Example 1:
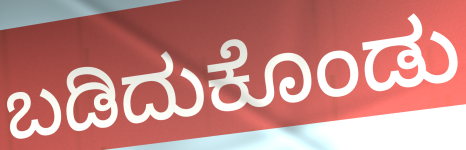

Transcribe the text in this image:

ಬಡಿದುಕೊಂಡು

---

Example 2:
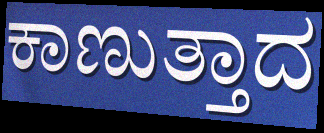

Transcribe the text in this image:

ಕಾಣುತ್ತಾದ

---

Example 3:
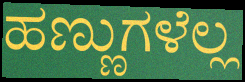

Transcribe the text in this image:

ಹಣ್ಣುಗಳೆಲ್ಲ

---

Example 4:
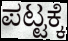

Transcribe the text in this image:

ಪಟ್ಟಕ್ಕೆ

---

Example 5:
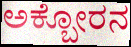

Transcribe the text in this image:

ಅಕ್ಬೋರನ